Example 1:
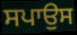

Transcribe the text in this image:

ਸਪਾਉਸ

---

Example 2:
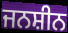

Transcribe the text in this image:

ਜਨਸ਼ੀਨ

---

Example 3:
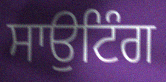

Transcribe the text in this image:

ਸਾਉਟਿੰਗ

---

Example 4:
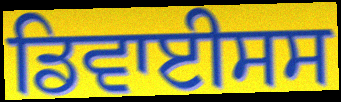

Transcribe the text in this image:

ਡਿਵਾਈਸਸ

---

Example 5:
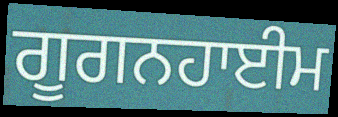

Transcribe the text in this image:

ਗੂਗਨਹਾਈਮ